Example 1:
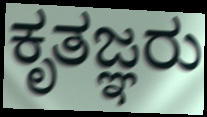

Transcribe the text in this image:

ಕೃತಜ್ಞರು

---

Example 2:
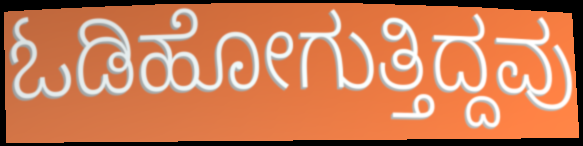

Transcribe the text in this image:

ಓಡಿಹೋಗುತ್ತಿದ್ದವು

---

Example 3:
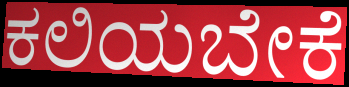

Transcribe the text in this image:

ಕಲಿಯಬೇಕೆ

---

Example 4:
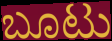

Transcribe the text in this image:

ಬೂಟು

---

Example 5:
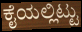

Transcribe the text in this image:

ಕೈಯಲ್ಲಿಟ್ಟು